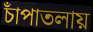
চাঁপাতলায়